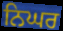
ਨਿਘਰ